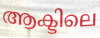
ആക്ടിലെ